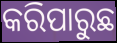
କରିପାରୁଛ